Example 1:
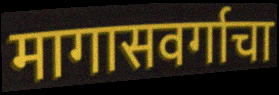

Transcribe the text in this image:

मागासवर्गाचा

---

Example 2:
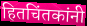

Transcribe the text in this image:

हितचिंतकांनी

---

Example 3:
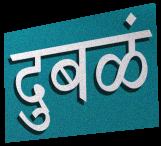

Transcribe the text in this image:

दुबळं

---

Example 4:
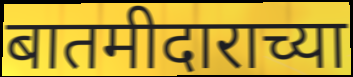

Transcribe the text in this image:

बातमीदाराच्या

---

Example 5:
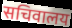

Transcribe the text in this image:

सचिवालय